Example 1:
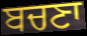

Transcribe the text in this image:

ਬਚਣਾ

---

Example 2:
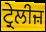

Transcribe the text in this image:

ਟ੍ਰੇਲੀਜ਼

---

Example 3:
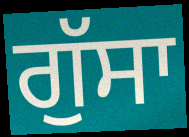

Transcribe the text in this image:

ਗੁੱਸਾ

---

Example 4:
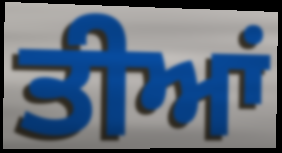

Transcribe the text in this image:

ਤੀਆਂ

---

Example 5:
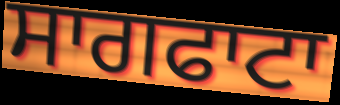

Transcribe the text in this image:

ਸਾਗਫਾਟਾ